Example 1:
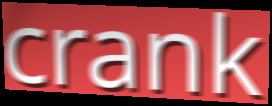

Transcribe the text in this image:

crank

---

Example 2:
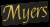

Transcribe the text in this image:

Myers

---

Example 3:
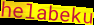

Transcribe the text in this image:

helabeku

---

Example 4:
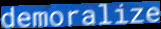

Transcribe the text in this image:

demoralize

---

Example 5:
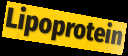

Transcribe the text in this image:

Lipoprotein